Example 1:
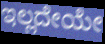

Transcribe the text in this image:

ಇಲ್ಲದೇಯೇ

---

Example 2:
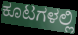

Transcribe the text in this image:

ಕೂಟಗಳಲ್ಲಿ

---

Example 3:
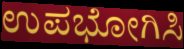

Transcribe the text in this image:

ಉಪಭೋಗಿಸಿ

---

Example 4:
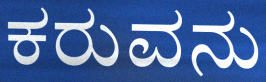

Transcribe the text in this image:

ಕರುವನು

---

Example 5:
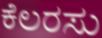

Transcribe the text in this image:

ಕೆಲರಸು